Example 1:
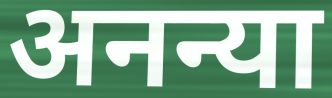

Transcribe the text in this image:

अनन्या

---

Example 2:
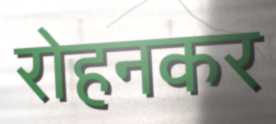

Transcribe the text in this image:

रोहनकर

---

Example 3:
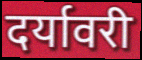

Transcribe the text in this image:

दर्यावरी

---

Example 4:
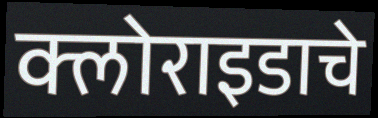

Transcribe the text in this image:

क्लोराइडाचे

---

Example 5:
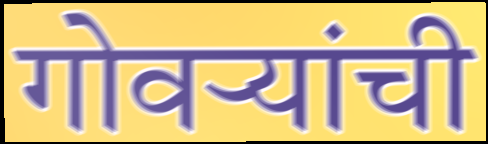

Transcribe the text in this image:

गोवऱ्यांची